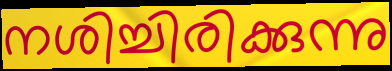
നശിച്ചിരിക്കുന്നു